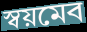
স্বয়মেব